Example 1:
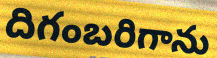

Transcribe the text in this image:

దిగంబరిగాను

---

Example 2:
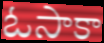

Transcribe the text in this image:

ఓసాకా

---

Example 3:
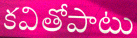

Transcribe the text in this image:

కవితోపాటు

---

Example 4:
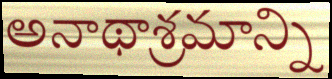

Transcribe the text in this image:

అనాథాశ్రమాన్ని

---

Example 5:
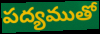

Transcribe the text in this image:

పద్యముతో